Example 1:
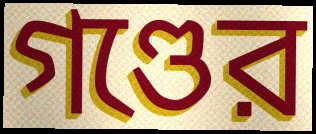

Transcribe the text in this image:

গণ্ডের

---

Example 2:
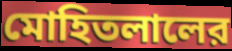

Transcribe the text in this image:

মোহিতলালের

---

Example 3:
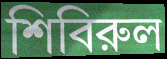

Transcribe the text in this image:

শিবিরুল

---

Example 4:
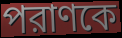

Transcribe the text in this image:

পরাণকে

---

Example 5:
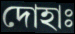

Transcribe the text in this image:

দোহাঃ